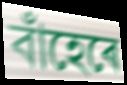
বাঁহেৰে